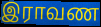
இராவண